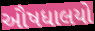
ઔષધાલયો